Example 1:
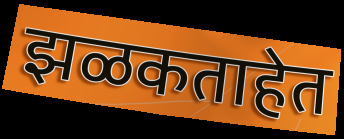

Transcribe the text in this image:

झळकताहेत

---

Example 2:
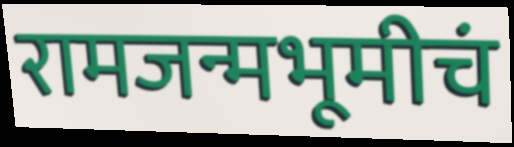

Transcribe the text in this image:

रामजन्मभूमीचं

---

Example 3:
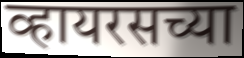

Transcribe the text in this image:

व्हायरसच्या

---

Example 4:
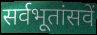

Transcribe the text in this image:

सर्वभूतांसवें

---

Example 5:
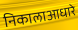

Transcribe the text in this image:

निकालाआधारे